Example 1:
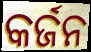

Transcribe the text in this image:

କର୍ଜନ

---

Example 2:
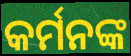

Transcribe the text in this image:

କର୍ମନଙ୍କ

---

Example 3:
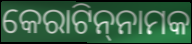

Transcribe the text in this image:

କେରାଟିନ୍‌ନାମକ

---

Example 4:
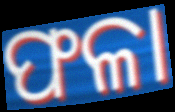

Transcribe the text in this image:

ଫଳା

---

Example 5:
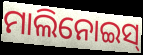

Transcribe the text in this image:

ମାଲିନୋଇସ୍